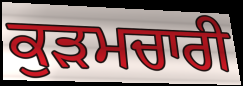
ਕੁੜਮਚਾਰੀ